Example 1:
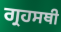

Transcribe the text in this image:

ਗ੍ਰਹਸਥੀ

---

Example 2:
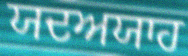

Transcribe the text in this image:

ਯਦਅਯਾਹ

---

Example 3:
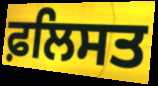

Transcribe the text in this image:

ਫ਼ਲਿਸਤ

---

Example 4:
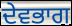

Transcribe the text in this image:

ਦੇਵਭਾਗ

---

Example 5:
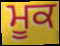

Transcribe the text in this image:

ਮੂਕ